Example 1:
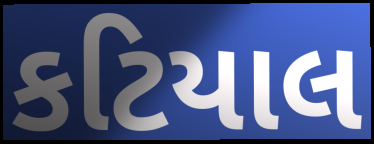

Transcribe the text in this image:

કટિયાલ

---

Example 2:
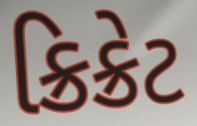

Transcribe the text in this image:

ક્રિક્રેટ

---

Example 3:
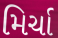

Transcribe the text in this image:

મિર્ચા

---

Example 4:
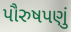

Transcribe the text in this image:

પૌરુષપણું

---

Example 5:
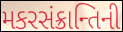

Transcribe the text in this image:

મકરસંક્રાન્તિની